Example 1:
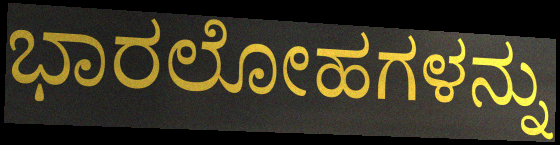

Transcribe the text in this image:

ಭಾರಲೋಹಗಳನ್ನು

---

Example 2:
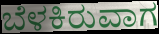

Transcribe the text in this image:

ಬೆಳಕಿರುವಾಗ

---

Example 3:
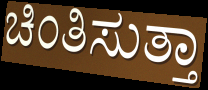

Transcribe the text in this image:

ಚಿಂತಿಸುತ್ತಾ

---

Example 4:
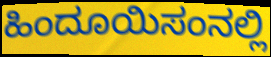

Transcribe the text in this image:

ಹಿಂದೂಯಿಸಂನಲ್ಲಿ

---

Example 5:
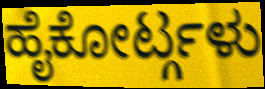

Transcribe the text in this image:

ಹೈಕೋರ್ಟ್ಗಳು